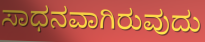
ಸಾಧನವಾಗಿರುವುದು